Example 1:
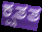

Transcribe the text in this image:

ಕ್ಷತತ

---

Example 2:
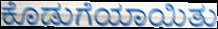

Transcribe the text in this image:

ಕೊಡುಗೆಯಾಯಿತು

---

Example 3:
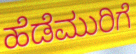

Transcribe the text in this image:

ಹೆಡೆಮುರಿಗೆ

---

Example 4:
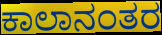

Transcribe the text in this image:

ಕಾಲಾನಂತರ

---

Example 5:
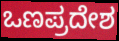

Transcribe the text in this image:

ಒಣಪ್ರದೇಶ